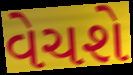
વેચશે